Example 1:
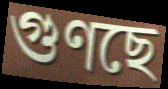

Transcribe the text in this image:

গুণছে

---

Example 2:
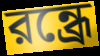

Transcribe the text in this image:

রন্ধ্রে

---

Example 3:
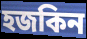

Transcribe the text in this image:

হজকিন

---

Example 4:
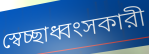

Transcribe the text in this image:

স্বেচ্ছাধ্বংসকারী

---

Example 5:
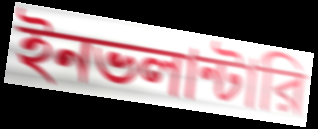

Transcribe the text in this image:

ইনভলান্টারি